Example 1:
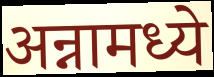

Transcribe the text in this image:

अन्नामध्ये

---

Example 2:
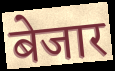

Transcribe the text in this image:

बेजार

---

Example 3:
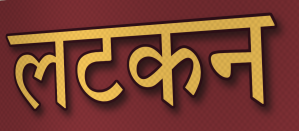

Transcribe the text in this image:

लटकन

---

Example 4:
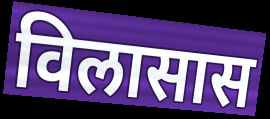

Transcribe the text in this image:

विलासास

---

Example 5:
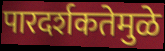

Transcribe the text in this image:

पारदर्शकतेमुळे